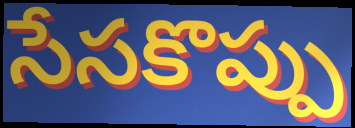
సేసకొప్పు